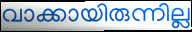
വാക്കായിരുന്നില്ല